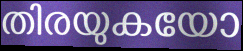
തിരയുകയോ